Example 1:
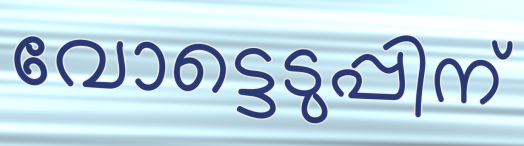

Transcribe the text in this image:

വോട്ടെടുപ്പിന്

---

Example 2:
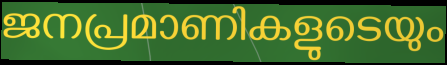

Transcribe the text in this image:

ജനപ്രമാണികളുടെയും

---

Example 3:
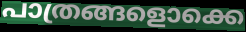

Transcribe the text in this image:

പാത്രങ്ങളൊക്കെ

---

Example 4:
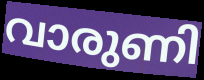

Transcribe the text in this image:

വാരുണി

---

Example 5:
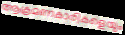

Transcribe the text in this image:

ആക്രമണകാരികളെയും